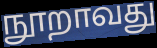
நூறாவது